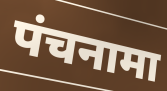
पंचनामा